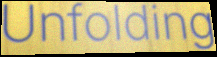
Unfolding